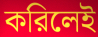
করিলেই